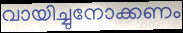
വായിച്ചുനോക്കണം